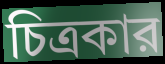
চিত্রকার